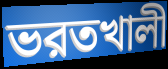
ভরতখালী